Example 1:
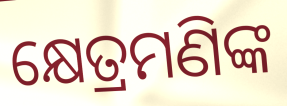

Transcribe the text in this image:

କ୍ଷେତ୍ରମଣିଙ୍କ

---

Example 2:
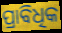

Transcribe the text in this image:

ପ୍ରାବିଧିକ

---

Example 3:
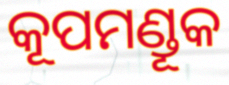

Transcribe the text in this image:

କୂପମଣ୍ଡୂକ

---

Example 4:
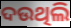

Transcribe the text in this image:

ଦଉଥିଲି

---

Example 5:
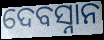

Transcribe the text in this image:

ଦେବସ୍ନାନ